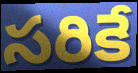
సరికే